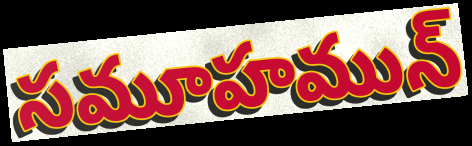
సమూహమున్